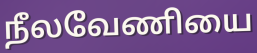
நீலவேணியை